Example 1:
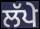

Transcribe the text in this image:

ਲੱਪੇ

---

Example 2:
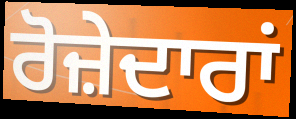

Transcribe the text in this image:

ਰੋਜ਼ੇਦਾਰਾਂ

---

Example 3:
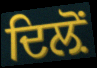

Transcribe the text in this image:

ਦਿਲ਼ੋਂ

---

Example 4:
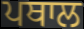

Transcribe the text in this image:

ਪਥਾਲ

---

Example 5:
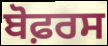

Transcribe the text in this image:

ਬੋਫ਼ਰਸ